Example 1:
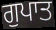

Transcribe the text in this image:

ਗੁਪਾਤ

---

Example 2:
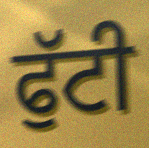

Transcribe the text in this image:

ਫੁੱਟੀ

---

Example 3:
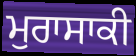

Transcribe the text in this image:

ਮੁਰਾਸਾਕੀ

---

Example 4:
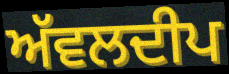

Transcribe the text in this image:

ਅੱਵਲਦੀਪ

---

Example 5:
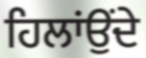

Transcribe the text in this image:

ਹਿਲਾਂਉਂਦੇ